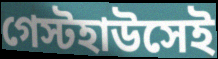
গেস্টহাউসেই